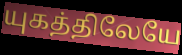
யுகத்திலேயே